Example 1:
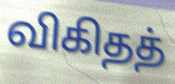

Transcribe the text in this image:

விகிதத்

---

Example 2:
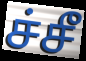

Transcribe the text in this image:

ச்சீ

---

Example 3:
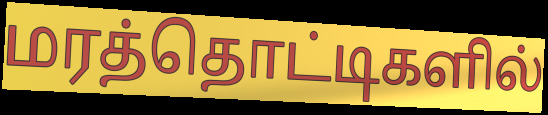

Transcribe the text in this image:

மரத்தொட்டிகளில்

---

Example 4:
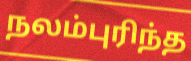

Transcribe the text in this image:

நலம்புரிந்த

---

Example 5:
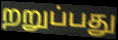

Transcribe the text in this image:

றறுப்பது